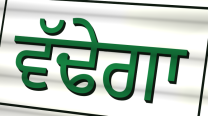
ਵੱਢੇਗਾ